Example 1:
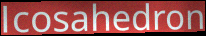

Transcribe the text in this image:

Icosahedron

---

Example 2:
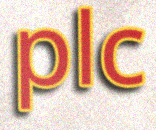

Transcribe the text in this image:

plc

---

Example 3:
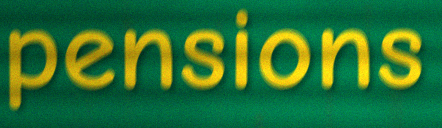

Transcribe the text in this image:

pensions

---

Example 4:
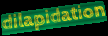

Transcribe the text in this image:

dilapidation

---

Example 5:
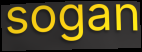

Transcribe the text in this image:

sogan